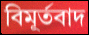
বিমূর্তবাদ